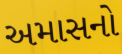
અમાસનો